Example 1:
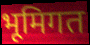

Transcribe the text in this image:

भूमिगत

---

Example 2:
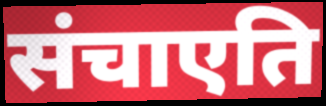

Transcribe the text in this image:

संचाएति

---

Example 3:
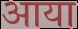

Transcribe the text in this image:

आया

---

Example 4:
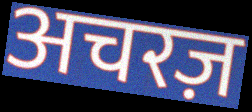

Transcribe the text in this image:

अचरज़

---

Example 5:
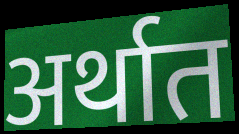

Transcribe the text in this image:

अर्थात